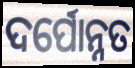
ଦର୍ପୋନ୍ନତ